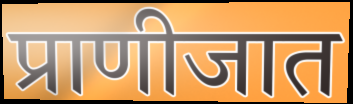
प्राणीजात